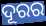
ଦୂରର